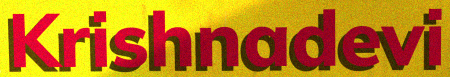
Krishnadevi